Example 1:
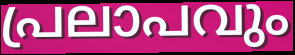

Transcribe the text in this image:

പ്രലാപവും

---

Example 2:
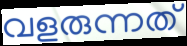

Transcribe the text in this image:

വളരുന്നത്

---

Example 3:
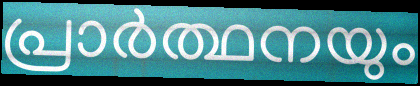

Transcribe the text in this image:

പ്രാർത്ഥനയും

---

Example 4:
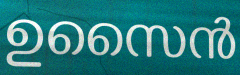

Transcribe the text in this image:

ഉസൈൻ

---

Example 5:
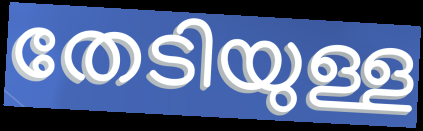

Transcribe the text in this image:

തേടിയുള്ള